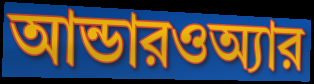
আন্ডারওঅ্যার